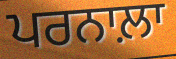
ਪਰਨਾਲ਼ਾ